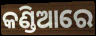
କଣ୍ଡିଆରେ